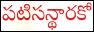
పటిసన్థారకో